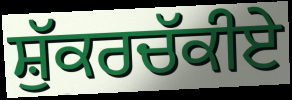
ਸ਼ੁੱਕਰਚੱਕੀਏ